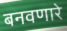
बनवणारे